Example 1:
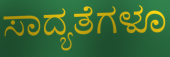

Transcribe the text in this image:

ಸಾದ್ಯತೆಗಳೂ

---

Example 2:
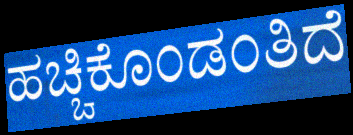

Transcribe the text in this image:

ಹಚ್ಚಿಕೊಂಡಂತಿದೆ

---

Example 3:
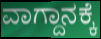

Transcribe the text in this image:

ವಾಗ್ದಾನಕ್ಕೆ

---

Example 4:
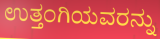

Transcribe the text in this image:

ಉತ್ತಂಗಿಯವರನ್ನು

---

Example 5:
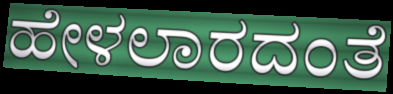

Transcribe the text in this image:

ಹೇಳಲಾರದಂತೆ